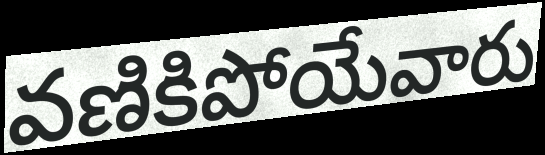
వణికిపోయేవారు